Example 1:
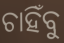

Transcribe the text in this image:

ଚାହିଁବୁ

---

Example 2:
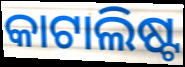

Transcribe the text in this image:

କାଟାଲିଷ୍ଟ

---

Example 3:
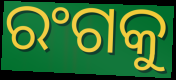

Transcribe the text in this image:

ରଂଗକୁ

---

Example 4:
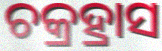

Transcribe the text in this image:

ଚକ୍ରହ୍ରାସ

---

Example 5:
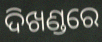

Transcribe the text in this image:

ଦିଖଣ୍ଡରେ